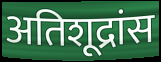
अतिशूद्रांस